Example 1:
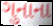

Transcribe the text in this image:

ગુનાના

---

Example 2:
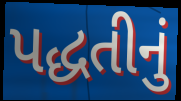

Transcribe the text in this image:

પદ્ધતીનું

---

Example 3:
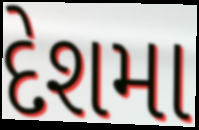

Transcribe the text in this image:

દેશમા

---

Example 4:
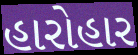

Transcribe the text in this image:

હારોહાર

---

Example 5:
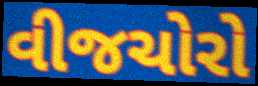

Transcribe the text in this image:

વીજચોરો